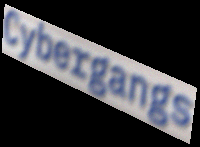
Cybergangs